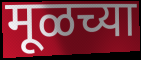
मूळच्या